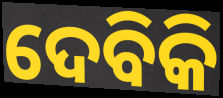
ଦେବିକି